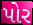
પોર